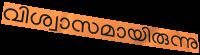
വിശ്വാസമായിരുന്നു